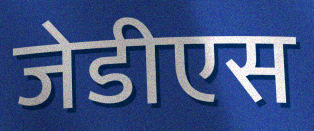
जेडीएस